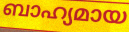
ബാഹ്യമായ